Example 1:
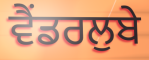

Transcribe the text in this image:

ਵੈਂਡਰਲੁਬੇ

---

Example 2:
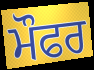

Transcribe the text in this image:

ਮੌਫਰ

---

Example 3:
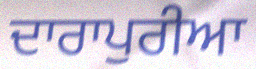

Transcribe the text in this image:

ਦਾਰਾਪੁਰੀਆ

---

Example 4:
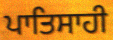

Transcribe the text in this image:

ਪਾਤਿਸਾਹੀ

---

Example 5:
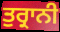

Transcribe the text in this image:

ਤੁਰ੍ਰਾਨੀ